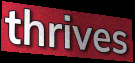
thrives